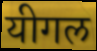
यीगल